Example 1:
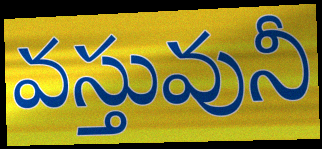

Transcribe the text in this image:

వస్తువునీ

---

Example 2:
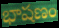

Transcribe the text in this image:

భాషణం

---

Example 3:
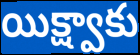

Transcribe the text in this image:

యిక్ష్వాకు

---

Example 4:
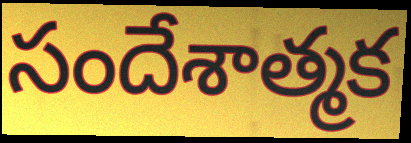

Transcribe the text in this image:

సందేశాత్మక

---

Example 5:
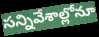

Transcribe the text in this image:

సన్నివేశాల్లోనూ